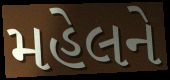
મહેલને